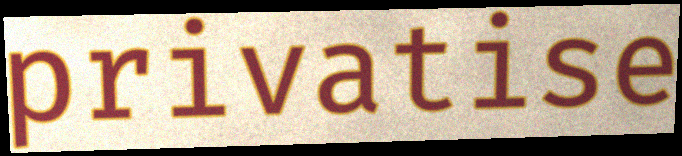
privatise